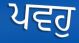
ਪਵਹੁ